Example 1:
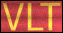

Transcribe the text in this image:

VLT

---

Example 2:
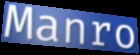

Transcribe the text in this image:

Manro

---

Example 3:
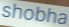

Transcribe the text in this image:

shobha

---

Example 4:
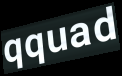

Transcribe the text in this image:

qquad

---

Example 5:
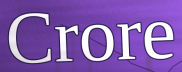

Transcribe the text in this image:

Crore